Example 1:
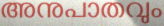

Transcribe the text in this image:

അനുപാതവും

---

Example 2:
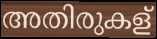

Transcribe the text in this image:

അതിരുകള്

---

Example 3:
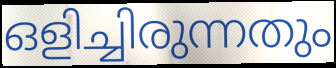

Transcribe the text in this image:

ഒളിച്ചിരുന്നതും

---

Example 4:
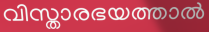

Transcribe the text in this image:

വിസ്താരഭയത്താൽ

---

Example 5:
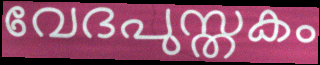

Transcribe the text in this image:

വേദപുസ്തകം